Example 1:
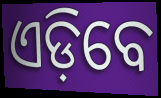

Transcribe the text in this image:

ଏଡ଼ିବେ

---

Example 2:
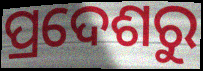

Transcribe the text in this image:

ପ୍ରଦେଶରୁ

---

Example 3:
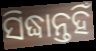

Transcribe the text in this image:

ସିଦ୍ଧାନ୍ତହିଁ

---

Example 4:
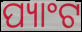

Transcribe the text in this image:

ପ୍ୟାଂଟ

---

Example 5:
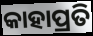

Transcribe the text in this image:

କାହାପ୍ରତି